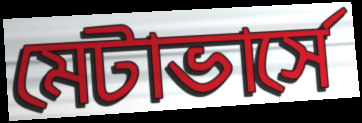
মেটাভার্সে